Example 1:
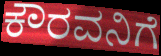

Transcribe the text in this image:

ಕೌರವನಿಗೆ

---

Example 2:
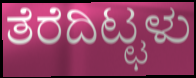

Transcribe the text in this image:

ತೆರೆದಿಟ್ಟಳು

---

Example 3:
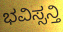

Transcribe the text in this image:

ಭವಿಸ್ಸನ್ತಿ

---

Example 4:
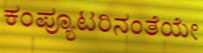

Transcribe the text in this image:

ಕಂಪ್ಯೂಟರಿನಂತೆಯೇ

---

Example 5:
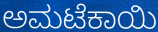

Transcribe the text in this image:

ಅಮಟೆಕಾಯಿ